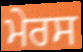
ਮੇਰਸ